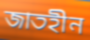
জাতহীন